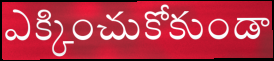
ఎక్కించుకోకుండా